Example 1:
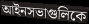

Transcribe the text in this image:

আইনসভাগুলিকে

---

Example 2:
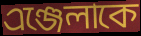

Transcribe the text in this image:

এঞ্জেলাকে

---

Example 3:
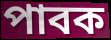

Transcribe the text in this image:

পাবক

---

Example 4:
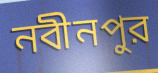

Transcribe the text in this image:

নবীনপুর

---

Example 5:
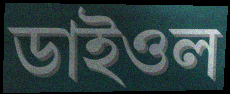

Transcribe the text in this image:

ডাইওল